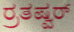
ರ್ರತಷ್ವರ್